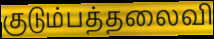
குடும்பத்தலைவி